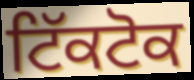
ਟਿੱਕਟੋਕ